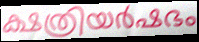
ക്ഷത്രിയർഷഭം